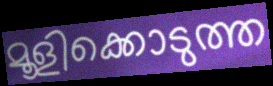
മൂളിക്കൊടുത്ത